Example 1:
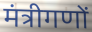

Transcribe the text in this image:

मंत्रीगणों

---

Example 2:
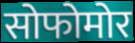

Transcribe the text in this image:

सोफोमोर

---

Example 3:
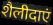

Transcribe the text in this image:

शैलीदाएं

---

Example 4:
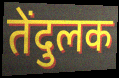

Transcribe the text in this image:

तेंदुलक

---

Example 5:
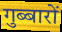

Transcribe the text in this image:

गुब्बारों